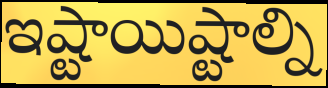
ఇష్టాయిష్టాల్ని